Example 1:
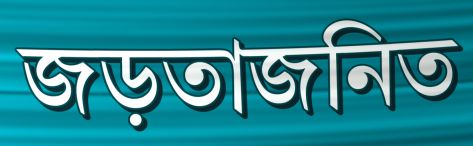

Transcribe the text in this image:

জড়তাজনিত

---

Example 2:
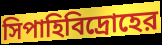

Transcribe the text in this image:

সিপাহিবিদ্রোহের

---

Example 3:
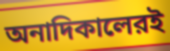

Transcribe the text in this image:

অনাদিকালেরই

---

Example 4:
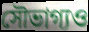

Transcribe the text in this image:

সৌভাগ্যও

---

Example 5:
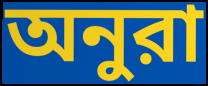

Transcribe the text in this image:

অনুরা